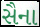
સૈના